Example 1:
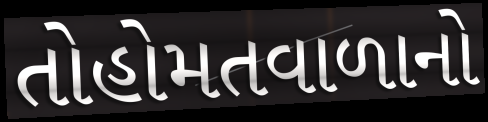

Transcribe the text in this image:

તોહોમતવાળાનો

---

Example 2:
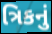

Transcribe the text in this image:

ત્રિકનું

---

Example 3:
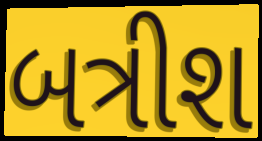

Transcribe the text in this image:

બત્રીશ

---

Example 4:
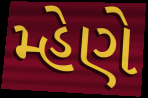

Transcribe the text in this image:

મ્હેણે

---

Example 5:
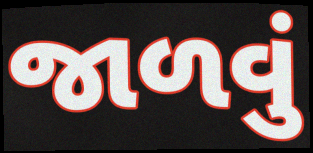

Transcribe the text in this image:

જાળવું